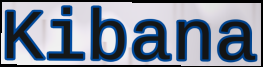
Kibana